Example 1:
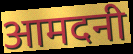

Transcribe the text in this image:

आमदनी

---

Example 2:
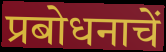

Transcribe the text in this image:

प्रबोधनाचें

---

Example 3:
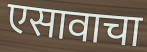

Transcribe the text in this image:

एसावाचा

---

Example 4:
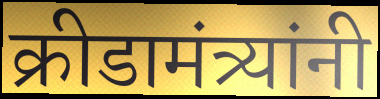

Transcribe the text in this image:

क्रीडामंत्र्यांनी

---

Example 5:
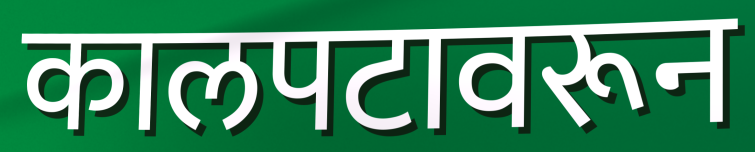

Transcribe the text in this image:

कालपटावरून